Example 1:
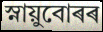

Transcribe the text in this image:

স্নায়ুবোৰৰ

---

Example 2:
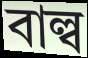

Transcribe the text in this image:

বাল্ব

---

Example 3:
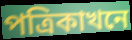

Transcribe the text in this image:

পত্ৰিকাখনে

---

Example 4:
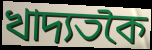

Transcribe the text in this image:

খাদ্যতকৈ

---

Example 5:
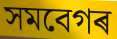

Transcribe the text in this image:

সমবেগৰ